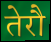
तेरौ